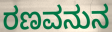
ರಣವನುನ